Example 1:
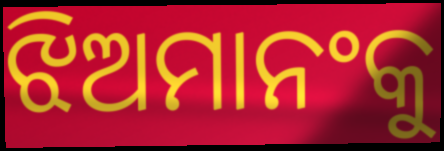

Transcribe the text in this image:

ଝିଅମାନଂକୁ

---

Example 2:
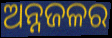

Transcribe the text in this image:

ଅନ୍ନଜଳର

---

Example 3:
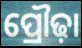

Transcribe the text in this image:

ପ୍ରୌଢ଼ା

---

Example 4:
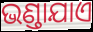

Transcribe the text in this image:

ଭଣ୍ଡାଯାଏ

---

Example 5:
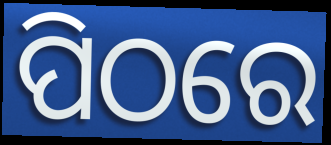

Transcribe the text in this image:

ପିଠରେ